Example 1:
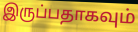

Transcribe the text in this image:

இருப்பதாகவும்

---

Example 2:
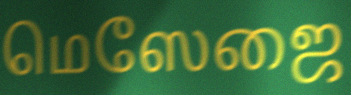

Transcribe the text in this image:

மெஸேஜை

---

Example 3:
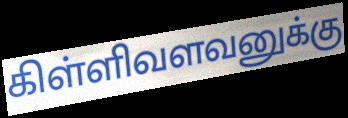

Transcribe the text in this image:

கிள்ளிவளவனுக்கு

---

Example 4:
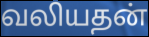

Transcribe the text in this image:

வலியதன்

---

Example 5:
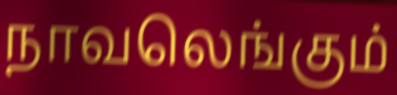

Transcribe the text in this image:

நாவலெங்கும்